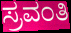
ಸ್ರವಂತಿ